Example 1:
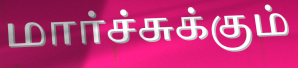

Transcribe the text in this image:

மார்ச்சுக்கும்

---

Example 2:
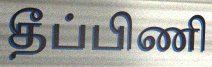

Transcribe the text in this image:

தீப்பிணி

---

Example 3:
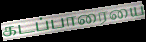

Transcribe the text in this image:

கடப்பாரையை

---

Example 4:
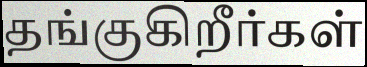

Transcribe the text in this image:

தங்குகிறீர்கள்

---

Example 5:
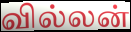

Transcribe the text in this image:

வில்லன்